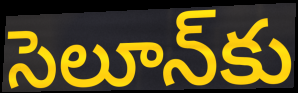
సెలూన్‌కు